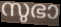
സുഭാ